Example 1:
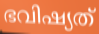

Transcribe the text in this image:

ഭവിഷ്യത്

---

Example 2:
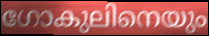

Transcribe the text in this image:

ഗോകുലിനെയും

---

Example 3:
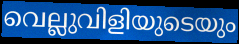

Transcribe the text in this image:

വെല്ലുവിളിയുടെയും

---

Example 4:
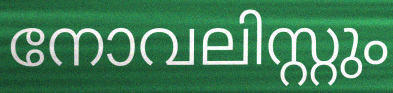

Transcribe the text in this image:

നോവലിസ്റ്റും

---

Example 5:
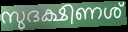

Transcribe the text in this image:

സുദക്ഷിണശ്